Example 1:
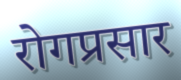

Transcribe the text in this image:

रोगप्रसार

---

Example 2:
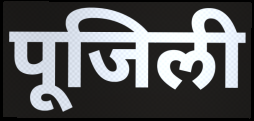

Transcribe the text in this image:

पूजिली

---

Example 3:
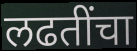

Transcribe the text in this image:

लढतींचा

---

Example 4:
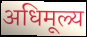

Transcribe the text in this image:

अधिमूल्य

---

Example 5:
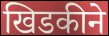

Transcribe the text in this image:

खिडकीने